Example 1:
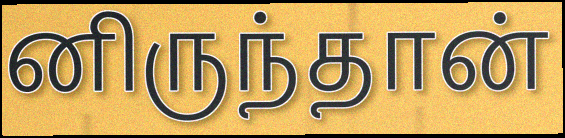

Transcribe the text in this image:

னிருந்தான்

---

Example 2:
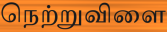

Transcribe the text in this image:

நெற்றுவிளை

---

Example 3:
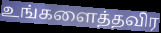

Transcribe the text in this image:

உங்களைத்தவிர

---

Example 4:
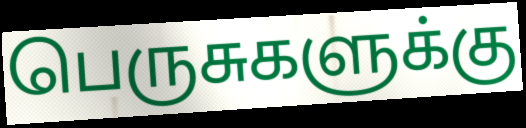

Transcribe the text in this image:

பெருசுகளுக்கு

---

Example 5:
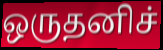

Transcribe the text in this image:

ஒருதனிச்